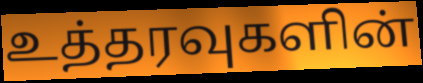
உத்தரவுகளின்